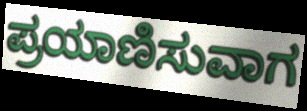
ಪ್ರಯಾಣಿಸುವಾಗ